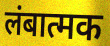
लंबात्मक